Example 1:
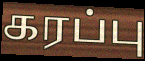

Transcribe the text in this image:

கரப்பு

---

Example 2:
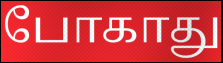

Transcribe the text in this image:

போகாது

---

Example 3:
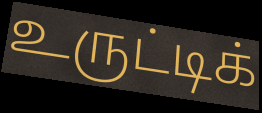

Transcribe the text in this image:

உருட்டிக்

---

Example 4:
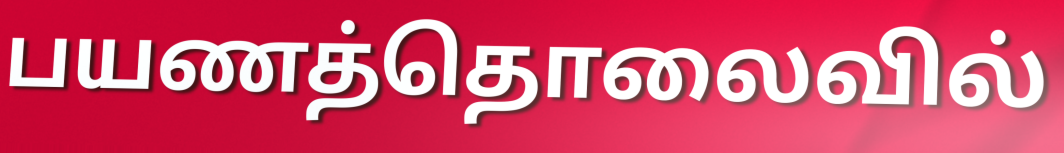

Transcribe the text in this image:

பயணத்தொலைவில்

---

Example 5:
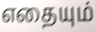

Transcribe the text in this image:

எதையும்